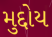
મુદ્દોય